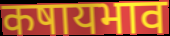
कषायभाव